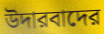
উদারবাদের